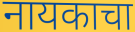
नायकाचा